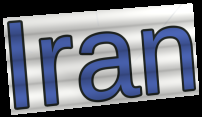
Iran